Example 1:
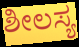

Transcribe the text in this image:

ಶೀಲಸ್ಯ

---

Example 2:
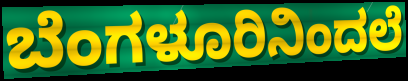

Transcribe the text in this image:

ಬೆಂಗಳೂರಿನಿಂದಲೆ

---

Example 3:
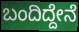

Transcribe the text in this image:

ಬಂದಿದ್ದೇನೆ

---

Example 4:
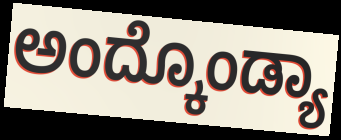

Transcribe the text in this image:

ಅಂದ್ಕೊಂಡ್ಯಾ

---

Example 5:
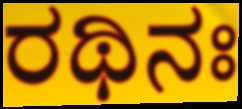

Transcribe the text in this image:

ರಥಿನಃ